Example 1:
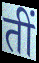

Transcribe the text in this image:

तीं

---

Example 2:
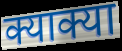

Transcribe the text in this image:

क्याक्या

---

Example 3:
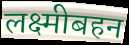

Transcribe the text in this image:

लक्ष्मीबहन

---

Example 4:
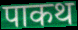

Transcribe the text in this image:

पाकथ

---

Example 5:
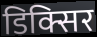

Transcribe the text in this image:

डिक्सिर